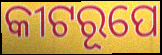
କୀଟରୂପେ